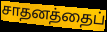
சாதனத்தைப்